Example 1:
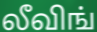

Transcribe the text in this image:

லீவிங்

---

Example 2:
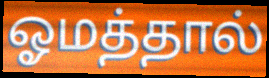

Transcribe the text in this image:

ஓமத்தால்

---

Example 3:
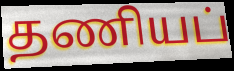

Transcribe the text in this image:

தணியப்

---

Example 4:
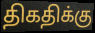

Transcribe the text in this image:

திகதிக்கு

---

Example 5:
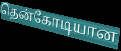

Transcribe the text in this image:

தென்கோடியான